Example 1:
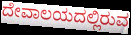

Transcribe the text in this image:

ದೇವಾಲಯದಲ್ಲಿರುವ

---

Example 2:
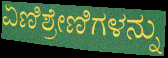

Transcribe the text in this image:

ಏಣಿಶ್ರೇಣಿಗಳನ್ನು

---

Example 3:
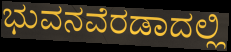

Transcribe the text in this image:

ಭುವನವೆರಡಾದಲ್ಲಿ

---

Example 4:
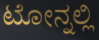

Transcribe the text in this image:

ಟೋನ್ನಲ್ಲಿ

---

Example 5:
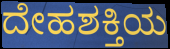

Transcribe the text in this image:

ದೇಹಶಕ್ತಿಯ